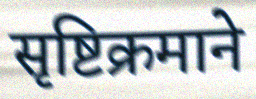
सृष्टिक्रमाने